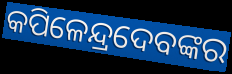
କପିଳେନ୍ଦ୍ରଦେବଙ୍କର